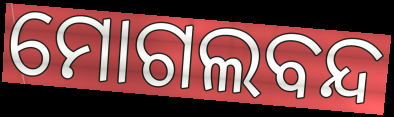
ମୋଗଲବନ୍ଦ